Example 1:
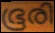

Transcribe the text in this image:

ഭൂരി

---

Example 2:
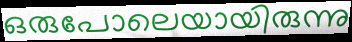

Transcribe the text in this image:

ഒരുപോലെയായിരുന്നു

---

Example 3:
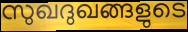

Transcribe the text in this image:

സുഖദുഖങ്ങളുടെ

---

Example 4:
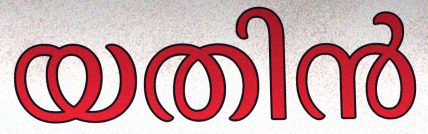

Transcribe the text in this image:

യതിൻ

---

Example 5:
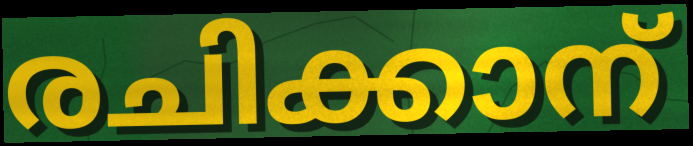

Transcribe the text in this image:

രചിക്കാന്